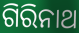
ଗିରିନାଥ